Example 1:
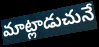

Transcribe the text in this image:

మాట్లాడుచునే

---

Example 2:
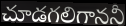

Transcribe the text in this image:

చూడగలిగాననీ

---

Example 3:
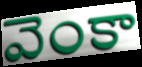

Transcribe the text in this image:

వెంకా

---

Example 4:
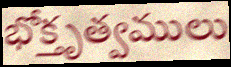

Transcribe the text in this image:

భోక్తృత్వములు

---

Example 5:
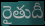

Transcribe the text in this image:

రైతుదీ